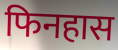
फिनहास